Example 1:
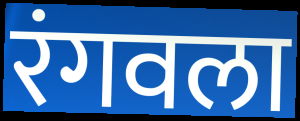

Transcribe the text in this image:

रंगवला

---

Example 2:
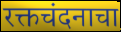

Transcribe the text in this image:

रक्तचंदनाचा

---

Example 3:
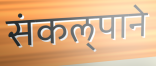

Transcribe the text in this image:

संकल्पाने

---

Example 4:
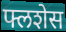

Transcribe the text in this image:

फ्लशेस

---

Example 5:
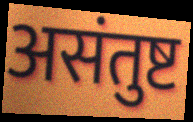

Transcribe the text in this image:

असंतुष्ट